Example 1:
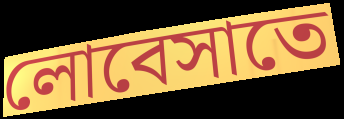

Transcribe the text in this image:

লোবেসাতে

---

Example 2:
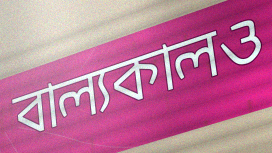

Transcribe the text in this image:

বাল্যকালও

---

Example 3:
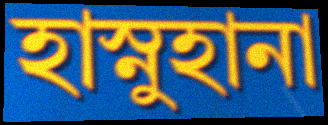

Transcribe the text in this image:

হাস্নুহানা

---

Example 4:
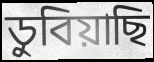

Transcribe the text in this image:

ডুবিয়াছি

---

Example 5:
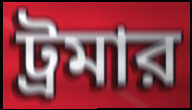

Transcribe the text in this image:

ট্রমার